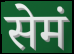
सेमं